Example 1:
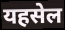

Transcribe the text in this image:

यहसेल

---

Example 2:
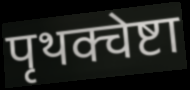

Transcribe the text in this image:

पृथक्चेष्टा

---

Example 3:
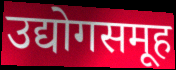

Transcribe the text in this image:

उद्योगसमूह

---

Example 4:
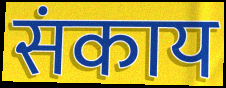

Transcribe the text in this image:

संकाय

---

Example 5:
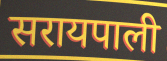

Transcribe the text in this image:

सरायपाली